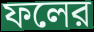
ফলের